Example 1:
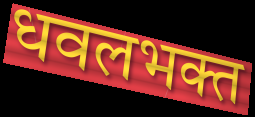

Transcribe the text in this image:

धवलभक्त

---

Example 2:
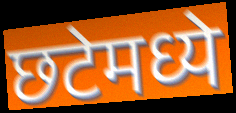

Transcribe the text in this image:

छटेमध्ये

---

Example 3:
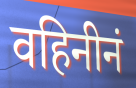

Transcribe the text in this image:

वहिनीनं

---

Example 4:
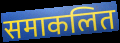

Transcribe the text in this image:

समाकलित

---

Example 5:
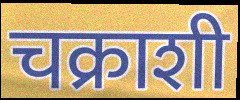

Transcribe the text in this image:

चक्राशी